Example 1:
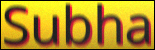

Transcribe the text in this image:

Subha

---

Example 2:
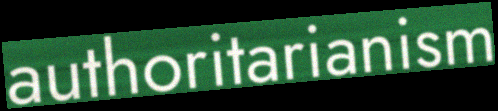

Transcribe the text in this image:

authoritarianism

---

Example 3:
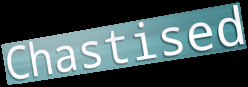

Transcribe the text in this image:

Chastised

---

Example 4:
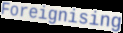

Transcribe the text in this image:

Foreignising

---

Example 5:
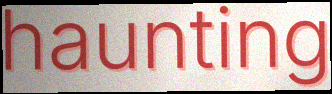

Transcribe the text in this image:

haunting